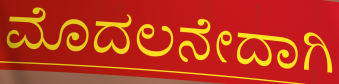
ಮೊದಲನೇದಾಗಿ